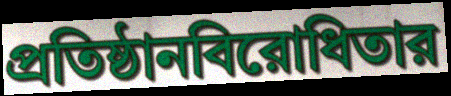
প্রতিষ্ঠানবিরোধিতার